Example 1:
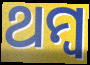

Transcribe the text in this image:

ଥମ୍ବ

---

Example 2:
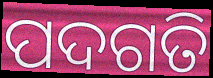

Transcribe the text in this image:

ପଦଗତି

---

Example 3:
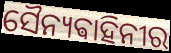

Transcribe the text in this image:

ସୈନ୍ୟଵାହିନୀର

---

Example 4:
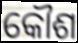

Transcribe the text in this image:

କୌଶ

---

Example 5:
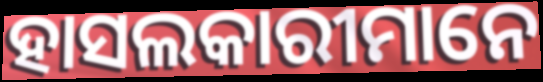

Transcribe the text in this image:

ହାସଲକାରୀମାନେ